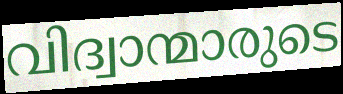
വിദ്വാന്മാരുടെ